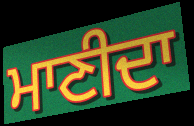
ਮਾਣੀਦਾ